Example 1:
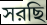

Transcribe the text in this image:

সরছি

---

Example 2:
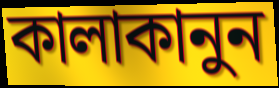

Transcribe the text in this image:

কালাকানুন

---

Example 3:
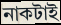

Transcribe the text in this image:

নাকটাই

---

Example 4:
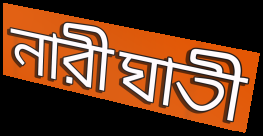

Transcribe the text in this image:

নারীঘাতী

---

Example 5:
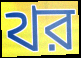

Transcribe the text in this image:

থর